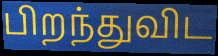
பிறந்துவிட